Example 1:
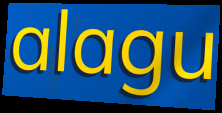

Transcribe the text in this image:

alagu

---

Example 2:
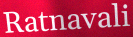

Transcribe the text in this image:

Ratnavali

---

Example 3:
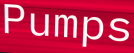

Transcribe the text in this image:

Pumps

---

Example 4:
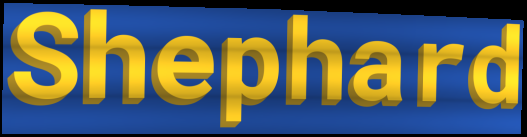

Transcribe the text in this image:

Shephard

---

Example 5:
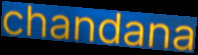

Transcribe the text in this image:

chandana